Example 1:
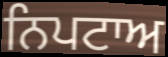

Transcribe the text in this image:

ਨਿਪਟਾਅ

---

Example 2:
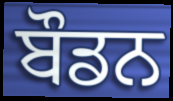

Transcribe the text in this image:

ਬੌਡਨ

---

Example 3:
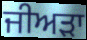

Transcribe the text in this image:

ਜੀਅੜਾ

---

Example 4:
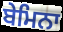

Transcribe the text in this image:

ਬੇਮਿਨਾ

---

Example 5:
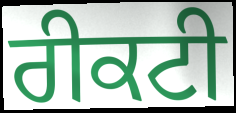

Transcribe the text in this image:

ਰੀਕਟੀ